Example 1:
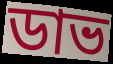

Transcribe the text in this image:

ডাভ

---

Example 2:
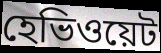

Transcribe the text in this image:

হেভিওয়েট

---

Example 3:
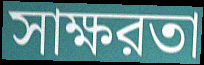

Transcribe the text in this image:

সাক্ষরতা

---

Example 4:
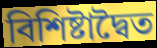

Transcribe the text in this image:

বিশিষ্টাদ্বৈত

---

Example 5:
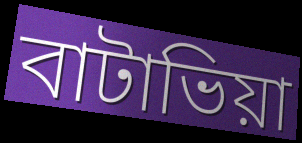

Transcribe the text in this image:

বাটাভিয়া